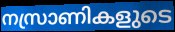
നസ്രാണികളുടെ